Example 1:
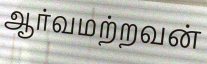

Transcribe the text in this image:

ஆர்வமற்றவன்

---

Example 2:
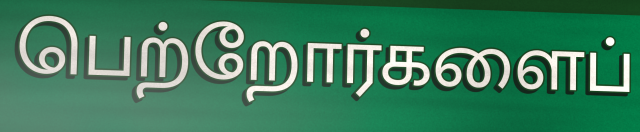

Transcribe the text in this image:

பெற்றோர்களைப்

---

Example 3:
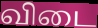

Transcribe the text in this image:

விடை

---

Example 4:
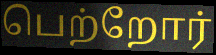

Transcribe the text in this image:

பெற்றோர்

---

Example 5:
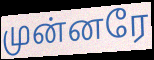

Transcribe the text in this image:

முன்னரே